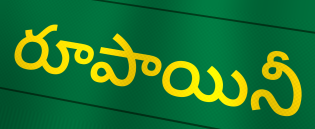
రూపాయినీ